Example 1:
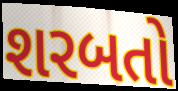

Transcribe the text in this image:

શરબતો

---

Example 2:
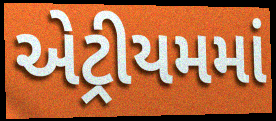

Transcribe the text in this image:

એટ્રીયમમાં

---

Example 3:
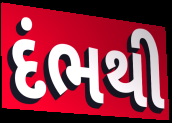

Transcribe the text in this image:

દંભથી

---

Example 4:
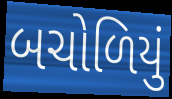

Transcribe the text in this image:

બચોળિયું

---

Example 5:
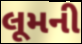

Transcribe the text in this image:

લૂમની